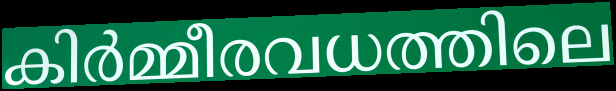
കിർമ്മീരവധത്തിലെ